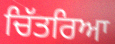
ਚਿੱਤਰਿਆ